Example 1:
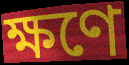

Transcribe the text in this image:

ক্ষণে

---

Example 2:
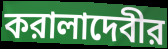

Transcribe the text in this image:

করালাদেবীর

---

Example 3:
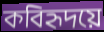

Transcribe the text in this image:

কবিহৃদয়ে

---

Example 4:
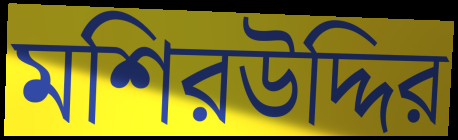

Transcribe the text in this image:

মশিরউদ্দির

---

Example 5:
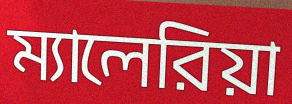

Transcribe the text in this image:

ম্যালেরিয়া